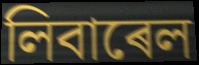
লিবাৰেল